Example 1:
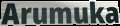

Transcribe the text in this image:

Arumuka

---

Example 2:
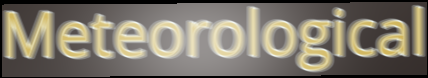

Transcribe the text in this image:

Meteorological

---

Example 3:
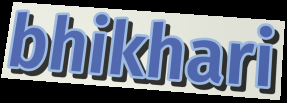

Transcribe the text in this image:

bhikhari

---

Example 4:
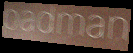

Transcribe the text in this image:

padman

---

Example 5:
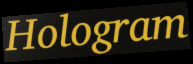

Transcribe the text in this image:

Hologram